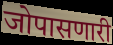
जोपासणारी